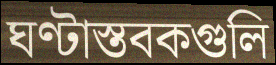
ঘণ্টাস্তবকগুলি